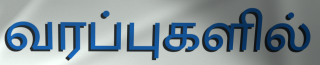
வரப்புகளில்